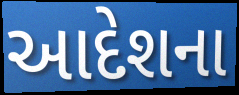
આદેશના